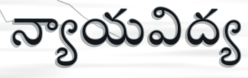
న్యాయవిద్య